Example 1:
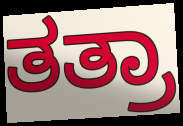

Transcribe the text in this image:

ತತ್ರಾ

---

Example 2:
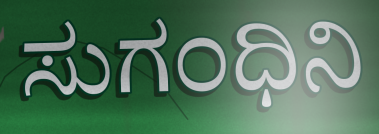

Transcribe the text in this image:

ಸುಗಂಧಿನಿ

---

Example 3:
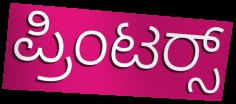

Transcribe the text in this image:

ಪ್ರಿಂಟರ‍್ಸ್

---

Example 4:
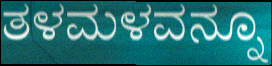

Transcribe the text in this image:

ತಳಮಳವನ್ನೂ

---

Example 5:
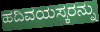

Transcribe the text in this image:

ಹದಿವಯಸ್ಕರನ್ನು